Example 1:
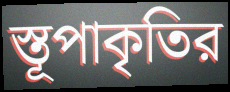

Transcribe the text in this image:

স্তূপাকৃতির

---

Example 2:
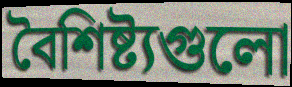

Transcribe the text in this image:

বৈশিষ্ট্যগুলো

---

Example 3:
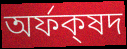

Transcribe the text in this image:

অর্ফক্‌ষদ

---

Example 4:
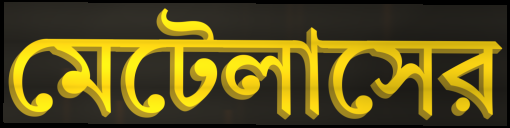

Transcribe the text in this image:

মেটেলাসের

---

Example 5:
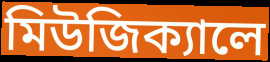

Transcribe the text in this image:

মিউজিক্যালে